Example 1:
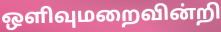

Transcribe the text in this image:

ஒளிவுமறைவின்றி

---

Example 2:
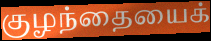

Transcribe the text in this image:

குழந்தையைக்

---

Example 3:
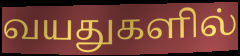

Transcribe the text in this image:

வயதுகளில்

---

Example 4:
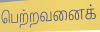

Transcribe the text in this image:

பெற்றவனைக்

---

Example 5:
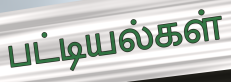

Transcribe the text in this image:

பட்டியல்கள்